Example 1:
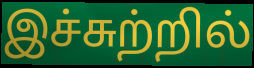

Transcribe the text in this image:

இச்சுற்றில்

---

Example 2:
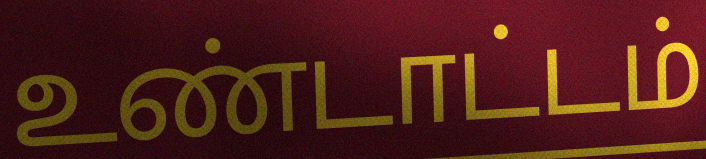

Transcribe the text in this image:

உண்டாட்டம்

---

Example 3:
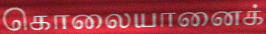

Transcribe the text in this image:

கொலையானைக்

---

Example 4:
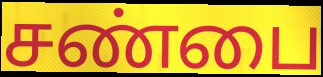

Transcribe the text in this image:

சண்பை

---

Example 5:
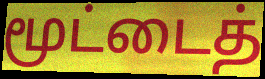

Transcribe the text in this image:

மூட்டைத்